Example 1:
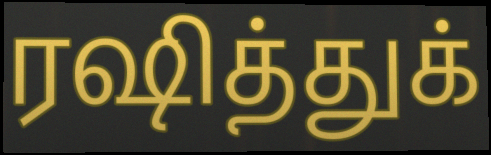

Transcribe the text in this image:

ரஷித்துக்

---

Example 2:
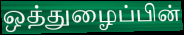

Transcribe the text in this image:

ஒத்துழைப்பின்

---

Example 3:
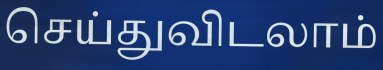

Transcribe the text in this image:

செய்துவிடலாம்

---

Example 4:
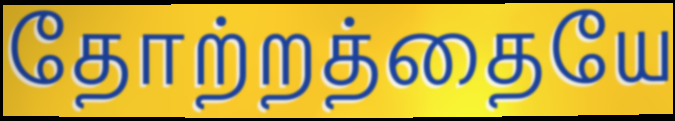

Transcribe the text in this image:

தோற்றத்தையே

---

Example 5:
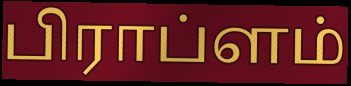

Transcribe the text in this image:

பிராப்ளம்